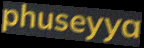
phuseyya